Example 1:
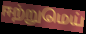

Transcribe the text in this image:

ஈற்றுமெய்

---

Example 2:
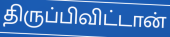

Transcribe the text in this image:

திருப்பிவிட்டான்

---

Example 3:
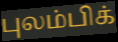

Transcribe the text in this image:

புலம்பிக்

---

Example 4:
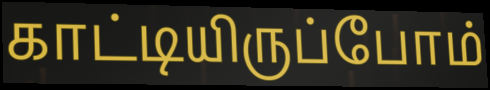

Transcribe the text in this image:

காட்டியிருப்போம்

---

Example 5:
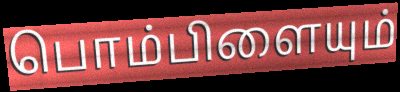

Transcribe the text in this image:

பொம்பிளையும்